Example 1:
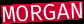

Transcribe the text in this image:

MORGAN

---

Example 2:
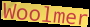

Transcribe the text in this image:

Woolmer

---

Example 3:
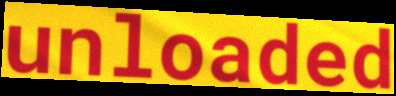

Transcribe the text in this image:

unloaded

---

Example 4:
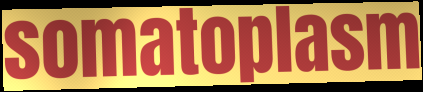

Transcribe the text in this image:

somatoplasm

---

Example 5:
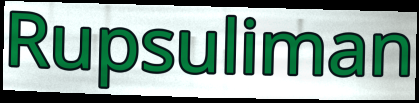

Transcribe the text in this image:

Rupsuliman